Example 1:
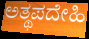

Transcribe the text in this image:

ಅತ್ಥಪದೇಹಿ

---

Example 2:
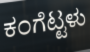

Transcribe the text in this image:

ಕಂಗೆಟ್ಟಳು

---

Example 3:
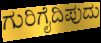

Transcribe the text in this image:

ಗುರಿಗೈದಿಪುದು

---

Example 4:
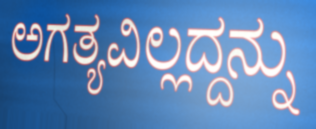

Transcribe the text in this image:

ಅಗತ್ಯವಿಲ್ಲದ್ದನ್ನು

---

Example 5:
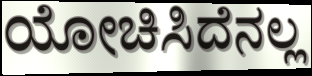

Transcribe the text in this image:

ಯೋಚಿಸಿದೆನಲ್ಲ